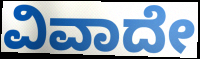
ವಿವಾದೇ